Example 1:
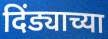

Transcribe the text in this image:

दिंड्याच्या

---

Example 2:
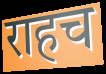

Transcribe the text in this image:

राहच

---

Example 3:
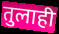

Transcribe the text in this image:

तुलाही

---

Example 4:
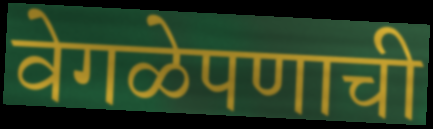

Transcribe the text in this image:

वेगळेपणाची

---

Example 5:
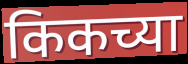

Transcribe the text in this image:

किकच्या